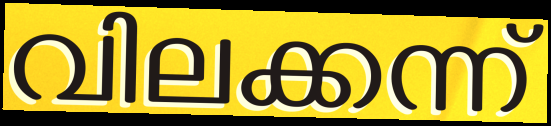
വിലക്കന്ന്